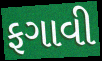
ફગાવી